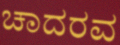
ಚಾದರವ